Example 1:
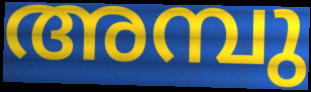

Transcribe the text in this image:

അമ്പു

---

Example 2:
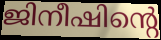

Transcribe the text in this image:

ജിനീഷിന്റെ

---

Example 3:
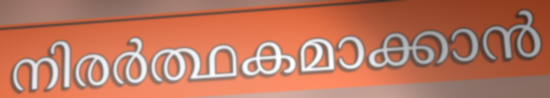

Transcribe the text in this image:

നിരർത്ഥകമാക്കാൻ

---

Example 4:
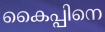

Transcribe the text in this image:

കൈപ്പിനെ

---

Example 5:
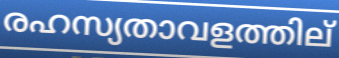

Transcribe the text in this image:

രഹസ്യതാവളത്തില്